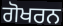
ਗੋਖਰਨ